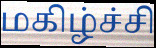
மகிழ்ச்சி